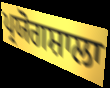
ਪ੍ਰਯੋਗਸ਼ਾਲਾ